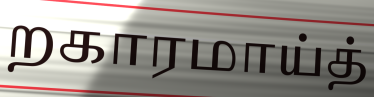
றகாரமாய்த்